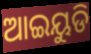
ଆଇୟୁଡି